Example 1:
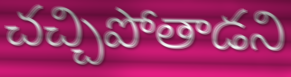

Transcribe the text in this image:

చచ్చిపోతాడని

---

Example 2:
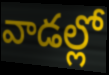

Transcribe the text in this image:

వాడల్లో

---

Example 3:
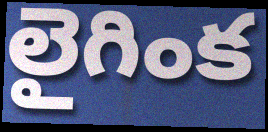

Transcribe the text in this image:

లైగింక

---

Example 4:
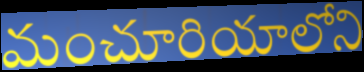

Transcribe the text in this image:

మంచూరియాలోని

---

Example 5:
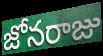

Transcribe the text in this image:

జోనరాజు